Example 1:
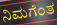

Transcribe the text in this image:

ನಿಮಗೆಂತ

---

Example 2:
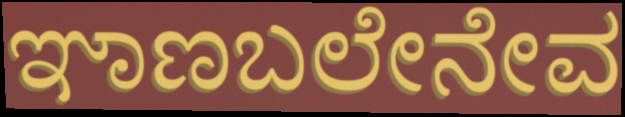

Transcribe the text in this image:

ಞಾಣಬಲೇನೇವ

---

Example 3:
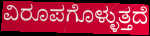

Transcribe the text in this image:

ವಿರೂಪಗೊಳ್ಳುತ್ತದೆ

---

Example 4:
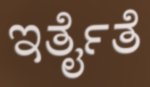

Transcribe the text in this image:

ಇರ್ತೈತೆ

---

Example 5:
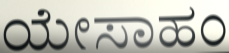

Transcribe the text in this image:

ಯೇಸಾಹಂ